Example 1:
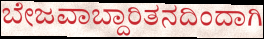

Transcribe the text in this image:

ಬೇಜವಾಬ್ದಾರಿತನದಿಂದಾಗಿ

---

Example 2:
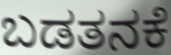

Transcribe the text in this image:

ಬಡತನಕೆ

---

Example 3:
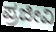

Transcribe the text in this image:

ಪ್ರಜೀವಿ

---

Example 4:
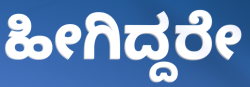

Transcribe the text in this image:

ಹೀಗಿದ್ದರೇ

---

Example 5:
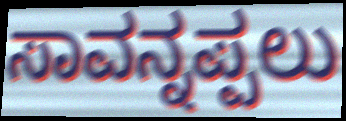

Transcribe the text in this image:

ಸಾವನ್ನಪ್ಪಲು